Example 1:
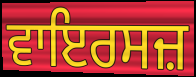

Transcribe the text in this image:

ਵਾਇਰਸਜ਼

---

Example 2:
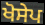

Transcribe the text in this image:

ਖੋਸੇਪ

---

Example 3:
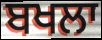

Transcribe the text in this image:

ਬਖਲਾ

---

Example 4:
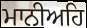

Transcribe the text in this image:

ਮਾਨੀਅਹਿ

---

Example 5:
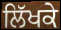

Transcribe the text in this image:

ਲਿੱਖਕੇ